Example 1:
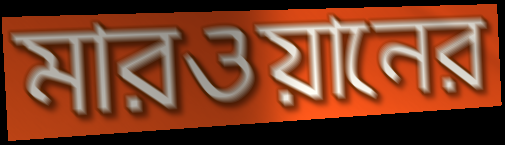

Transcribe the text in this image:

মারওয়ানের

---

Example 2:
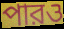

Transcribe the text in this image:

পারও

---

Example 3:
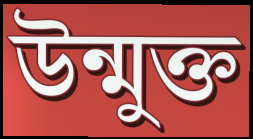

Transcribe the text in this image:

উন্মুক্ত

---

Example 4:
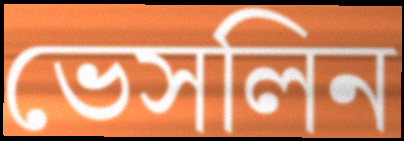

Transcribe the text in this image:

ভেসলিন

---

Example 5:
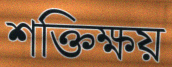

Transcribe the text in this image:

শক্তিক্ষয়